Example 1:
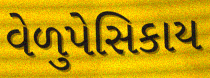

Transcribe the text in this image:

વેળુપેસિકાય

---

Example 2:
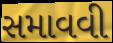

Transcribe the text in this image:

સમાવવી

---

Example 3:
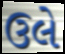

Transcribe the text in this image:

ઉલે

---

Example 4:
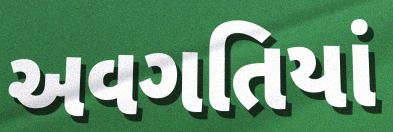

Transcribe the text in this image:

અવગતિયાં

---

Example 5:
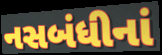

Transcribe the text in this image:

નસબંધીનાં